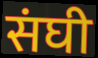
संघी